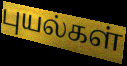
புயல்கள்